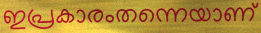
ഇപ്രകാരംതന്നെയാണ്